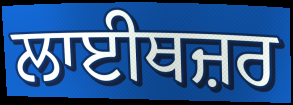
ਲਾਈਥਜ਼ਰ